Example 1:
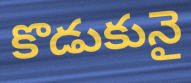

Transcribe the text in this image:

కొడుకునై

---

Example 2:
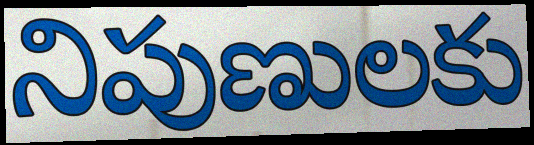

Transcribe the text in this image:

నిపుణులకు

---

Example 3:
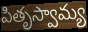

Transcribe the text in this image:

పితృస్వామ్య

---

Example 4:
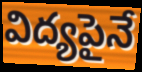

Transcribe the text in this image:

విద్యపైనే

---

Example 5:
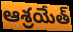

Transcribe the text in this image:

ఆశ్రయేత్